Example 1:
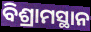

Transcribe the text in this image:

ବିଶ୍ରାମସ୍ଥାନ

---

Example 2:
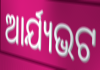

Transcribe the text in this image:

ଆର୍ଯ୍ୟଭଟ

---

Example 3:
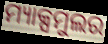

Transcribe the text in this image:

ମ୍ୟାକ୍ସମୁଲର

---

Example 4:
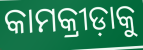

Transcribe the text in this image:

କାମକ୍ରୀଡ଼ାକୁ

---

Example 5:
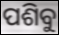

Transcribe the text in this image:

ପଶିବୁ